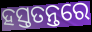
ହସ୍ତତନ୍ତରେ